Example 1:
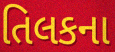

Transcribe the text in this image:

તિલકના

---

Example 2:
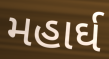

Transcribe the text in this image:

મહાર્ઘ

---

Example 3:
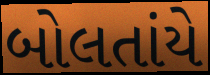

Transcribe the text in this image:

બોલતાંયે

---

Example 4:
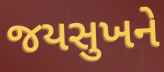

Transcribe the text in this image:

જયસુખને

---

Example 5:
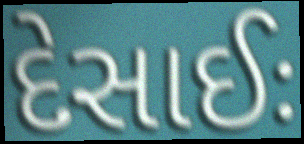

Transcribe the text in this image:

દેસાઈઃ